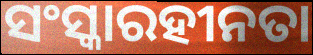
ସଂସ୍କାରହୀନତା